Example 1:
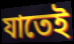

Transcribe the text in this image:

যাতেই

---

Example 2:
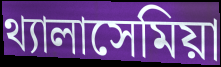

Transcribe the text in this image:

থ্যালাসেমিয়া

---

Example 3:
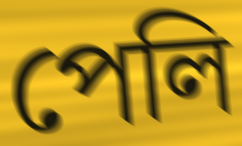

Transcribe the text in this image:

পেলি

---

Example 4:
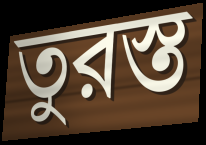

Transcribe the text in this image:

তুরস্ত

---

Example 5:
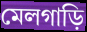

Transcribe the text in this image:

মেলগাড়ি